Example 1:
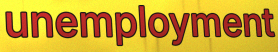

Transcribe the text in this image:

unemployment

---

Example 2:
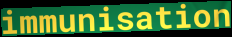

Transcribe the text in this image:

immunisation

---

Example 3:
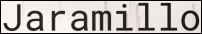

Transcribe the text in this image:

Jaramillo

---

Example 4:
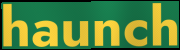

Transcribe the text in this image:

haunch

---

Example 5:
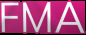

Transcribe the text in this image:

FMA